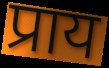
प्राय